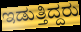
ಇಡುತ್ತಿದ್ದರು